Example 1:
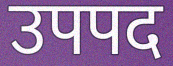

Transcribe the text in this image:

उपपद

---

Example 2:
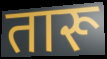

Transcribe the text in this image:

तारू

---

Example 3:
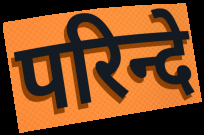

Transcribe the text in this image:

परिन्दे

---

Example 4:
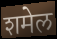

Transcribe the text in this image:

शमेल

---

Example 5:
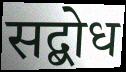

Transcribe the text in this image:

सद्बोध